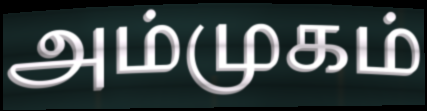
அம்முகம்